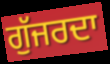
ਗੁੱਜਰਦਾ